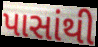
પાસાંથી